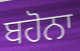
ਬਹੋਨਾ